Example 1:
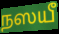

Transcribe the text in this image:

நஸயீ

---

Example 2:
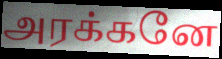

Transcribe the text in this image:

அரக்கனே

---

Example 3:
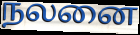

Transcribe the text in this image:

நலனை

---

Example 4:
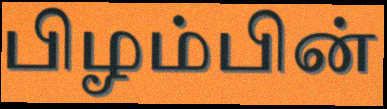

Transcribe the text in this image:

பிழம்பின்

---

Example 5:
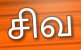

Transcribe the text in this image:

சிவ